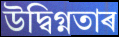
উদ্বিগ্নতাৰ